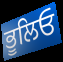
ਭੂਲਿਓ